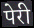
पेरी